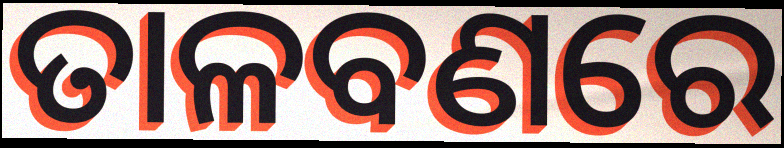
ତାଳବଣରେ